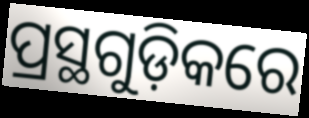
ପ୍ରସ୍ଥଗୁଡ଼ିକରେ